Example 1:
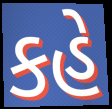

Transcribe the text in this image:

કહે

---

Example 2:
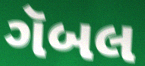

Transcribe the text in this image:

ગૅબલ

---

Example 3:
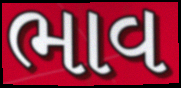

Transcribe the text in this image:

ભાવ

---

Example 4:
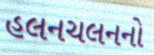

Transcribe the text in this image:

હલનચલનનો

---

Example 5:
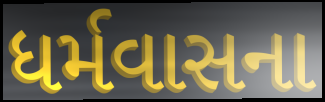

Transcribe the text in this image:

ધર્મવાસના